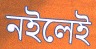
নইলেই